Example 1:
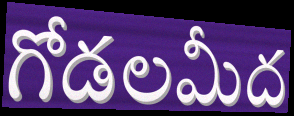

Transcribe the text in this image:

గోడలమీద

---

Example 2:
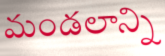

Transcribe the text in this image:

మండలాన్ని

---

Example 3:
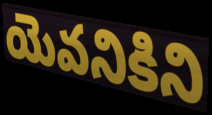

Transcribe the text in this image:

యెవనికిని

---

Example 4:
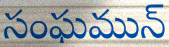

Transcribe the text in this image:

సంఘమున్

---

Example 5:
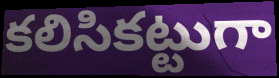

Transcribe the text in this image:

కలిసికట్టుగా